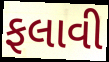
ફલાવી